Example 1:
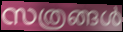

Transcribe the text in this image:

സത്രങ്ങൾ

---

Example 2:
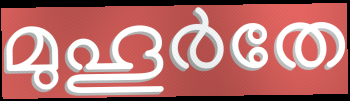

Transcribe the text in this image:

മുഹൂർതേ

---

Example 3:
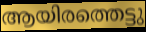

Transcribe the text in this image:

ആയിരത്തെട്ടു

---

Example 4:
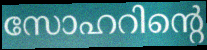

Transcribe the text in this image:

സോഹറിന്റെ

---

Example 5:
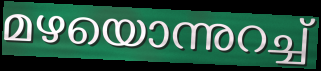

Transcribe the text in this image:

മഴയൊന്നുറച്ച്